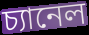
চ্যানেল